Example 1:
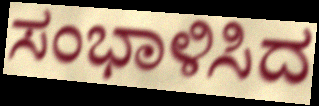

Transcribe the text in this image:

ಸಂಭಾಳಿಸಿದ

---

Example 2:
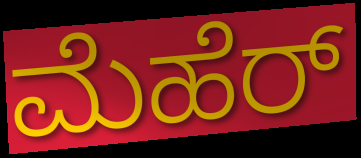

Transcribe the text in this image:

ಮೆಹೆರ್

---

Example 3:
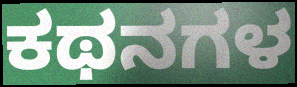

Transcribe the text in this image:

ಕಥನಗಳ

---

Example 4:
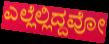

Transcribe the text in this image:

ಎಲ್ಲೆಲ್ಲಿದ್ದವೋ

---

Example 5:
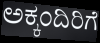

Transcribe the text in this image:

ಅಕ್ಕಂದಿರಿಗೆ